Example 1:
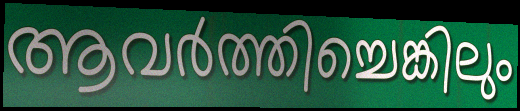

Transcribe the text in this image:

ആവർത്തിച്ചെങ്കിലും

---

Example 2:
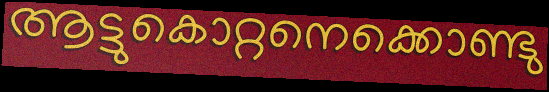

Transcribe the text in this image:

ആട്ടുകൊറ്റനെക്കൊണ്ടു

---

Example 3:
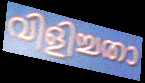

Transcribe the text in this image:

വിളിച്ചതാ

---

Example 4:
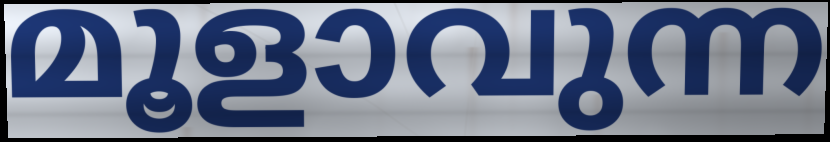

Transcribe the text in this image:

മൂളാവുന്ന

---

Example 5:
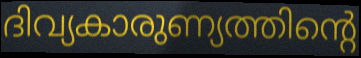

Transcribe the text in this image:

ദിവ്യകാരുണ്യത്തിന്റെ